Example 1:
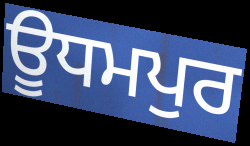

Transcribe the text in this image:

ਊਧਮਪੁਰ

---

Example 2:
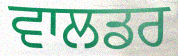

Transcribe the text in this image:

ਵਾਲਡਰ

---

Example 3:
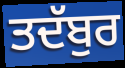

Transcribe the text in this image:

ਤਦੱਬੁਰ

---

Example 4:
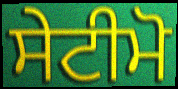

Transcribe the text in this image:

ਸੇਟੀਮੋ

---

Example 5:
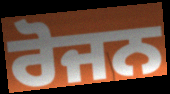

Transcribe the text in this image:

ਰੋਜਨ